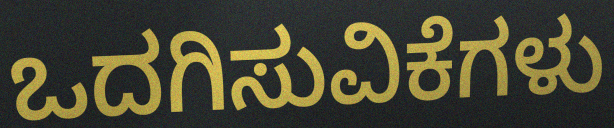
ಒದಗಿಸುವಿಕೆಗಳು